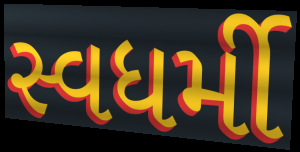
સ્વધર્મી